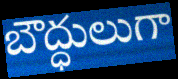
బౌద్ధులుగా